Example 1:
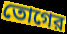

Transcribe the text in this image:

তোগের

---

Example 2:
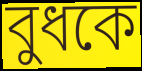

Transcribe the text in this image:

বুধকে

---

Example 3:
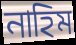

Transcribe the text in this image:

নাহিম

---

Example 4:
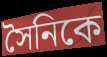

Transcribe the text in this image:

সৈনিকে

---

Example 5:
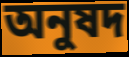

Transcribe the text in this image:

অনুষদ